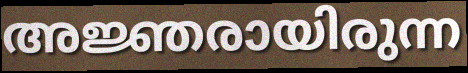
അജ്ഞരായിരുന്ന